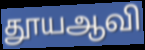
தூயஆவி